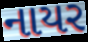
નાયર